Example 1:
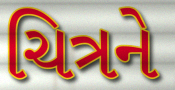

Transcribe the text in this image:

ચિત્રને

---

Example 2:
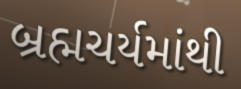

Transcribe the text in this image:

બ્રહ્મચર્યમાંથી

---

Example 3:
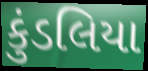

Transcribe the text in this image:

કુંડલિયા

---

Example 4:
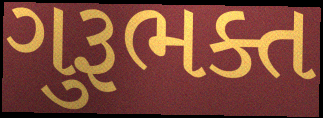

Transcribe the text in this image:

ગુરૂભક્ત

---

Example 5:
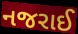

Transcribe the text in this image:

નજરાઈ